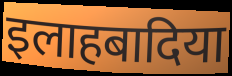
इलाहबादिया